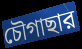
চৌগাছার